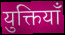
युक्तियाँ